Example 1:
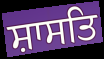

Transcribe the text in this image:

ਸ਼ਾਸਤਿ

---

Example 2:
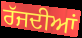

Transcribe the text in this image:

ਰੱਜਦੀਆਂ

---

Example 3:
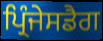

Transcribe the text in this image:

ਪ੍ਰਿੰਜੇਸਡੈਗ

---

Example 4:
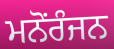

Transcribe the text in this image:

ਮਨੋਂਰੰਜਨ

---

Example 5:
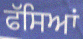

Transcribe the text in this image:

ਫੱਸਿਆਂ